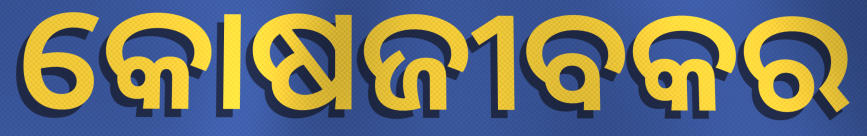
କୋଷଜୀବକର